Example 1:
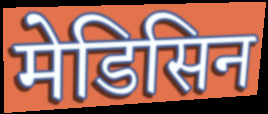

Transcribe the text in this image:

मेडिसिन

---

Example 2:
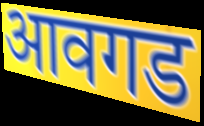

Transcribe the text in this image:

आवगड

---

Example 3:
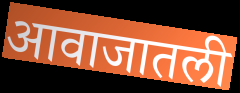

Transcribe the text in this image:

आवाजातली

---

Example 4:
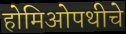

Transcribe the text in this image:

होमिओपथीचे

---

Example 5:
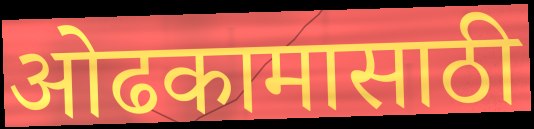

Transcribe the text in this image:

ओढकामासाठी